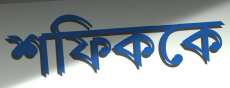
শফিককে